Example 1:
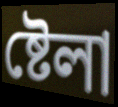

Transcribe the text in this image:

ষ্টেলা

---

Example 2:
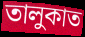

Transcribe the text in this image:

তালুকাত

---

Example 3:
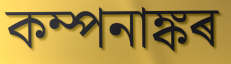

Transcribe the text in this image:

কম্পনাঙ্কৰ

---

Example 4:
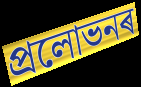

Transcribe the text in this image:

প্ৰলোভনৰ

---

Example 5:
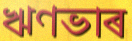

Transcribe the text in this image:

ঋণভাৰ